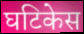
घटिकेस